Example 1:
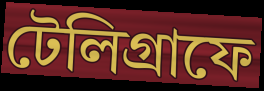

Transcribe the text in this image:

টেলিগ্রাফে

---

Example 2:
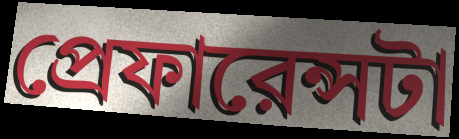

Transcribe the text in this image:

প্রেফারেন্সটা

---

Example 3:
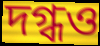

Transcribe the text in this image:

দগ্ধও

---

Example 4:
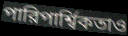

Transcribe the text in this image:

পারিপার্শ্বিকতাও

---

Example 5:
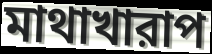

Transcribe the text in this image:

মাথাখারাপ